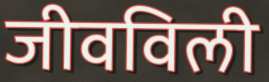
जीवविली